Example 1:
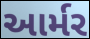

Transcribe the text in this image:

આર્મર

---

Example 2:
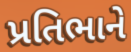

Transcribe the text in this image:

પ્રતિભાને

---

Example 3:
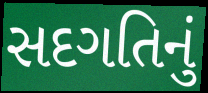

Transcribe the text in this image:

સદગતિનું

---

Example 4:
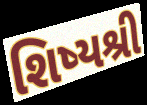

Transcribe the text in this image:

શિષ્યશ્રી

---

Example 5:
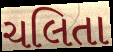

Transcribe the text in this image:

ચલિતા